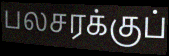
பலசரக்குப்